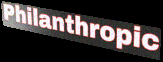
Philanthropic